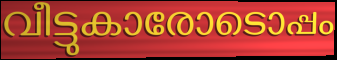
വീട്ടുകാരോടൊപ്പം